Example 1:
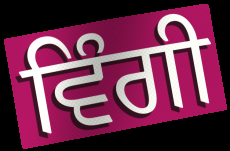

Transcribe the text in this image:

ਵਿੰਗੀ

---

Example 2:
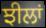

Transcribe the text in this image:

ਝੀਲਾਂ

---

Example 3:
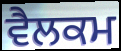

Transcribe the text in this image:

ਵੈਲਕਮ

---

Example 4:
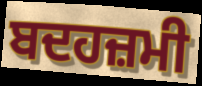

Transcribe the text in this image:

ਬਦਹਜ਼ਮੀ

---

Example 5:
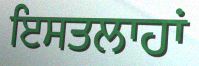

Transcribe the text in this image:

ਇਸਤਲਾਹਾਂ